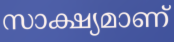
സാക്ഷ്യമാണ്